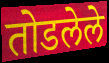
तोडलेले